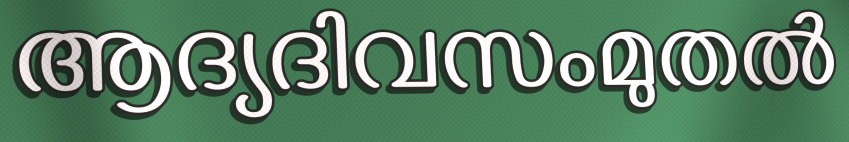
ആദ്യദിവസംമുതൽ